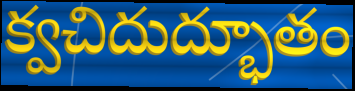
క్వచిదుద్భూతం